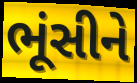
ભૂંસીને